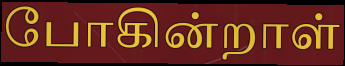
போகின்றாள்